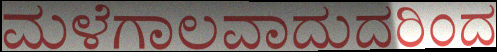
ಮಳೆಗಾಲವಾದುದರಿಂದ